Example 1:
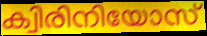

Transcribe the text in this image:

ക്വിരിനിയോസ്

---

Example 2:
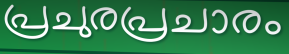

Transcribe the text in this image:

പ്രചുരപ്രചാരം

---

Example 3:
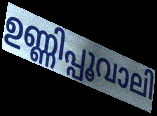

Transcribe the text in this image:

ഉണ്ണിപ്പൂവാലി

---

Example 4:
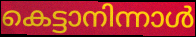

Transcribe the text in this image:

കെട്ടാനിന്നാൾ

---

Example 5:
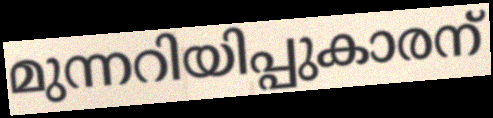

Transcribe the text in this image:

മുന്നറിയിപ്പുകാരന്